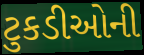
ટુકડીઓની